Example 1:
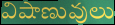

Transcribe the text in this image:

విషాణువులు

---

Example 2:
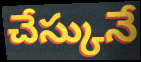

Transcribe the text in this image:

చేస్కునే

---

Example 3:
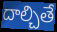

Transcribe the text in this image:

దాల్చితే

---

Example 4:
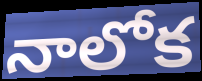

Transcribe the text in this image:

నాలోక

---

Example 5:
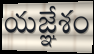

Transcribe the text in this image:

యజ్ఞేశం